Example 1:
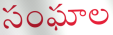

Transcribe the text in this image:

సంఘాల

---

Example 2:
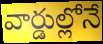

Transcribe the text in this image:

వార్డుల్లోనే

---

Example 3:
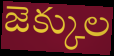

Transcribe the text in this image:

జెక్కుల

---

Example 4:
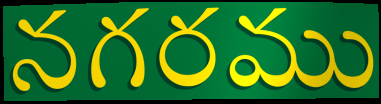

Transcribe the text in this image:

నగరము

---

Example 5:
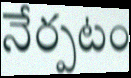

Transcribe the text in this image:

నేర్పటం